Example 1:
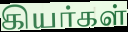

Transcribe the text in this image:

கியர்கள்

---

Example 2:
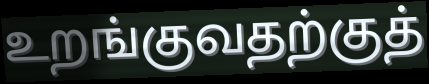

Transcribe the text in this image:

உறங்குவதற்குத்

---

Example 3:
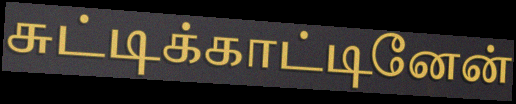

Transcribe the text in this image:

சுட்டிக்காட்டினேன்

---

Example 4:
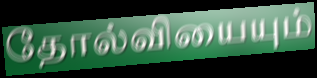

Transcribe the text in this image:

தோல்வியையும்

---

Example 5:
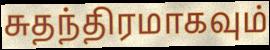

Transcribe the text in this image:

சுதந்திரமாகவும்